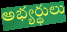
అభ్యర్థులు